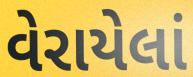
વેરાયેલાં